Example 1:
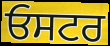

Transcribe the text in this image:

ਓਸਟਰ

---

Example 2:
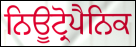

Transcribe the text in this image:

ਨਿਊਟ੍ਰੋਪੈਨਿਕ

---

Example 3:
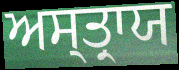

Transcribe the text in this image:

ਅਸ੍ਤ੍ਰਾਯ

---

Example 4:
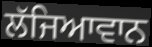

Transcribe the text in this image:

ਲੱਜਿਆਵਾਨ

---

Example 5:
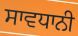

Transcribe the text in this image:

ਸਾਵਧਾਨੀ